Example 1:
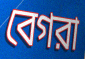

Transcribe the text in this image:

বেগরা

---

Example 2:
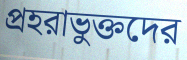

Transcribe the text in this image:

প্রহরাভুক্তদের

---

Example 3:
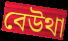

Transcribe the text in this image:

বেউথা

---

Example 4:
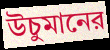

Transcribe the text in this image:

উচুমানের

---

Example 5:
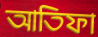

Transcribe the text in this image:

আতিফা